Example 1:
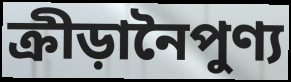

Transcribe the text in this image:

ক্রীড়ানৈপুণ্য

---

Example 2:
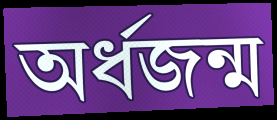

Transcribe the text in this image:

অর্ধজন্ম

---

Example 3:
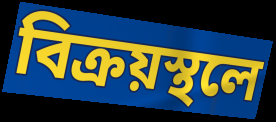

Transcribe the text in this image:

বিক্রয়স্থলে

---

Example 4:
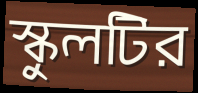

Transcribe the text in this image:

স্কুলটির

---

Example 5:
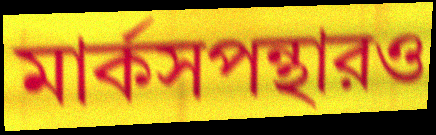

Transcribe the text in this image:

মার্কসপন্থারও